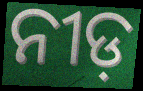
ନୀଡ଼